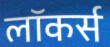
लॉकर्स